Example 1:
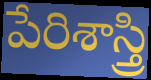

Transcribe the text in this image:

పేరిశాస్త్రి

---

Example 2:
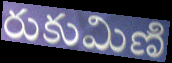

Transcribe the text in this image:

రుకుమిణి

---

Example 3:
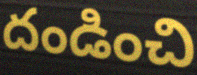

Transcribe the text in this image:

దండించి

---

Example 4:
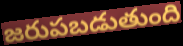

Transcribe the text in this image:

జరుపబడుతుంది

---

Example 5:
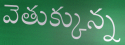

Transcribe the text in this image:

వెతుక్కున్న